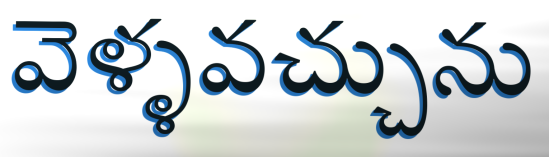
వెళ్ళవచ్చును